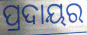
ପ୍ରଦାୟର